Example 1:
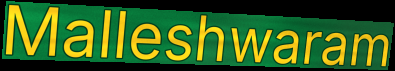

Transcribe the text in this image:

Malleshwaram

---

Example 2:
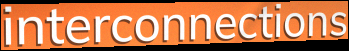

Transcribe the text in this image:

interconnections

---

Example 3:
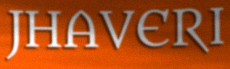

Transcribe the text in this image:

JHAVERI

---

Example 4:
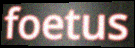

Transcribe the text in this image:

foetus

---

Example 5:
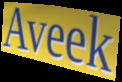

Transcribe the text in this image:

Aveek